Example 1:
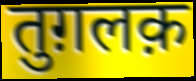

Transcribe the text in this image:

तुग़लक़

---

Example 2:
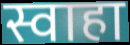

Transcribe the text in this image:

स्‍वाहा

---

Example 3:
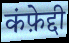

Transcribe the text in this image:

कंफ़ेद्दी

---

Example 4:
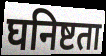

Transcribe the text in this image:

घनिष्टता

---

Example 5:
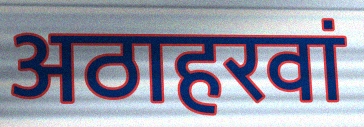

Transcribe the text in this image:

अठाहरवां